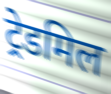
ट्रेडमिल